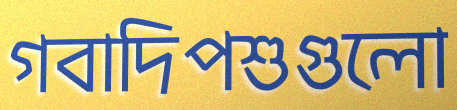
গবাদিপশুগুলো